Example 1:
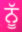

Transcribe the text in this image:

ਨੂੱ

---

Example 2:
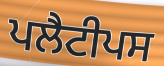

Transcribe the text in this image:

ਪਲੈਟੀਪਸ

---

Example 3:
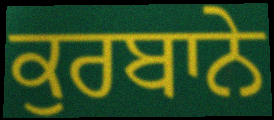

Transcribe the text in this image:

ਕੁਰਬਾਨੇ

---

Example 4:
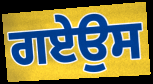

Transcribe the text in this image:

ਗਏਉਸ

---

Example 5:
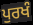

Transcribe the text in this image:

ਪੁਰਖੰ